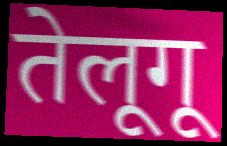
तेलूगू